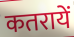
कतरायें